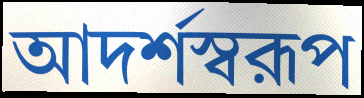
আদর্শস্বরূপ